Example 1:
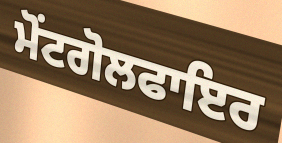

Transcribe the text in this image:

ਮੋਂਟਗੋਲਫਾਇਰ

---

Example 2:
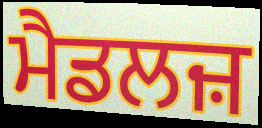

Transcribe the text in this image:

ਮੈਡਲਜ਼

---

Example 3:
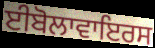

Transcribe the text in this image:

ਈਬੋਲਾਵਾਇਰਸ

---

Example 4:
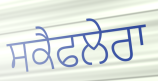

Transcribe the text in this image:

ਸਕੈਫਲੇਰਾ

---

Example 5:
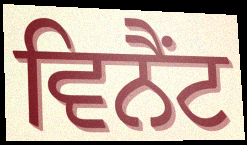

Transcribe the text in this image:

ਵਿਨੈਂਟ